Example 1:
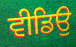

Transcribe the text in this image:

ਵੀਡਿਉ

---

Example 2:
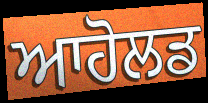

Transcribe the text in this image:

ਆਹੋਲਡ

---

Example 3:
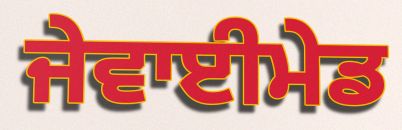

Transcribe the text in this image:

ਜੇਵਾਈਮੇਡ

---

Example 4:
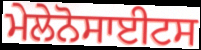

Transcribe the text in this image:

ਮੇਲੇਨੋਸਾਈਟਸ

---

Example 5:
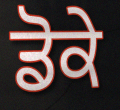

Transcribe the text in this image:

ਡੋਕੇ